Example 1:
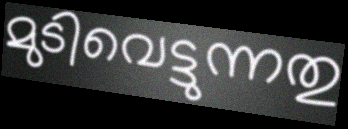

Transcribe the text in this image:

മുടിവെട്ടുന്നതു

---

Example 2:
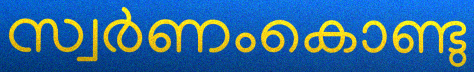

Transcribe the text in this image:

സ്വർണംകൊണ്ടു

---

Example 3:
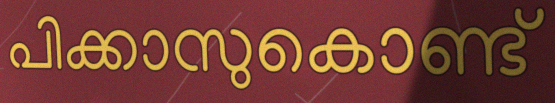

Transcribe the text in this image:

പിക്കാസുകൊണ്ട്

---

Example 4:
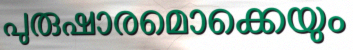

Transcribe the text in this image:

പുരുഷാരമൊക്കെയും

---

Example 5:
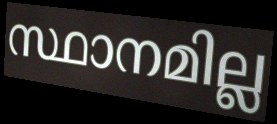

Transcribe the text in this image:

സ്ഥാനമില്ല